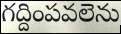
గద్దింపవలెను